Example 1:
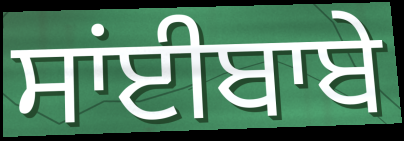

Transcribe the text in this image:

ਸਾਂਈਬਾਬੇ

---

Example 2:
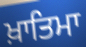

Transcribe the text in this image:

ਖ਼ਾਤਿਮਾ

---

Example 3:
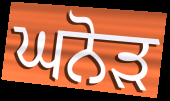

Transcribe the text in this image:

ਘਨੋੜ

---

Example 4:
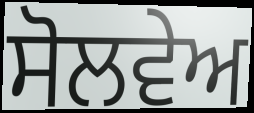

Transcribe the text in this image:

ਸੋਲਵੇਅ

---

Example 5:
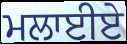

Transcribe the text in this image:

ਮਲਾਈਏ